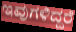
ಇವುಗಳಿದ್ದರೆ